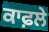
ਕਾਫ਼ਲੇ